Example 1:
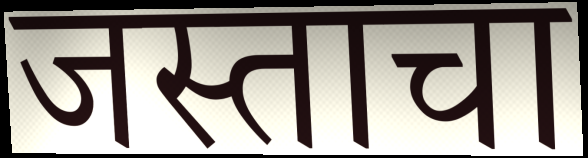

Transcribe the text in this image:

जस्ताचा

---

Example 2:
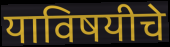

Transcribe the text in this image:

याविषयीचे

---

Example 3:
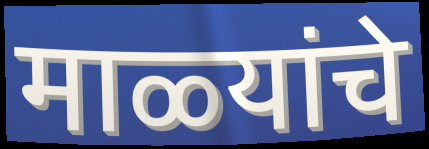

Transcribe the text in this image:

माळ्यांचे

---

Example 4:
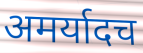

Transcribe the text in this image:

अमर्यादच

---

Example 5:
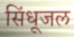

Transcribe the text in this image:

सिंधूजल